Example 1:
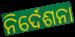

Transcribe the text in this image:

ନିର୍ଦେଶନା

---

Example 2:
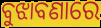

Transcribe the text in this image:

ବୁଝାବଣାରେ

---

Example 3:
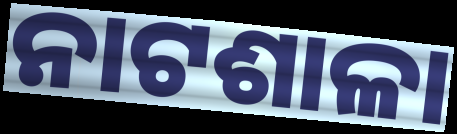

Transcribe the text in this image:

ନାଟଶାଳା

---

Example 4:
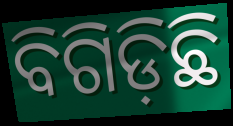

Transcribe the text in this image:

ବିଗିଡ଼ିଛି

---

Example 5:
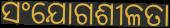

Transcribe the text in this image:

ସଂଯୋଗଶୀଳତା